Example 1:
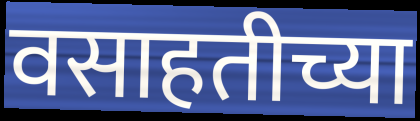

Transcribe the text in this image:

वसाहतीच्या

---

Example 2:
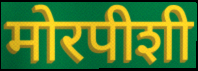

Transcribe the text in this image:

मोरपीशी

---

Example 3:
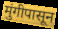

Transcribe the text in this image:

मुंगीपासून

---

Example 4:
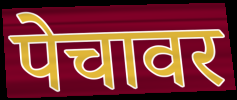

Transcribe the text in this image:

पेचावर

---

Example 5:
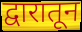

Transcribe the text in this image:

द्वारातून